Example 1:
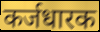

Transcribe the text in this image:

कर्जधारक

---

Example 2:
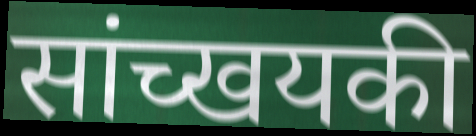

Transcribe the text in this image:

सांच्खयकी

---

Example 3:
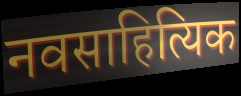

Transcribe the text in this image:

नवसाहित्यिक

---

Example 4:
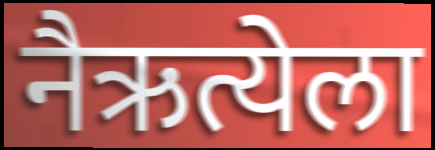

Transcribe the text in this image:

नैऋत्येला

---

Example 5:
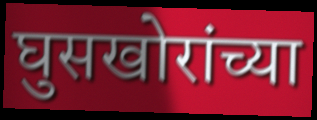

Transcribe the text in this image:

घुसखोरांच्या